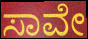
ಸಾವೇ